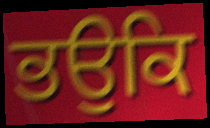
ਭਉਕਿ